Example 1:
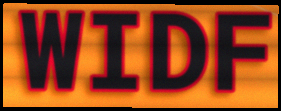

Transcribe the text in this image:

WIDF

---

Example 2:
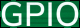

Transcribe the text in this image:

GPIO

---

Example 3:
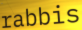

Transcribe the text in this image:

rabbis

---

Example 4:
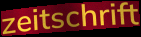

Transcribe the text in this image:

zeitschrift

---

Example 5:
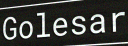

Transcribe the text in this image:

Golesar